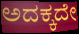
ಅದಕ್ಕದೇ